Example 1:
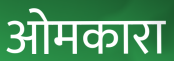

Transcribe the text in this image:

ओमकारा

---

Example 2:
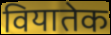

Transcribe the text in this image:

वियातेक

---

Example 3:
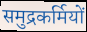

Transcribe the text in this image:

समुद्रकर्मियों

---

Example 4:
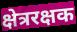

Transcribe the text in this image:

क्षेत्ररक्षक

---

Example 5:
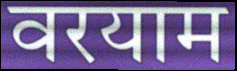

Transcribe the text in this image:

वरयाम